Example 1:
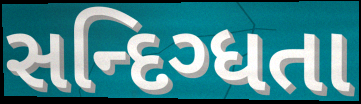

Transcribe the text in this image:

સન્દિગ્ધતા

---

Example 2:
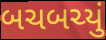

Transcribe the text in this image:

બચબચ્યું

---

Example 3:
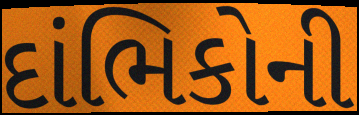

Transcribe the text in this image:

દાંભિકોની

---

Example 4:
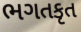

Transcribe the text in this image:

ભગતકૃત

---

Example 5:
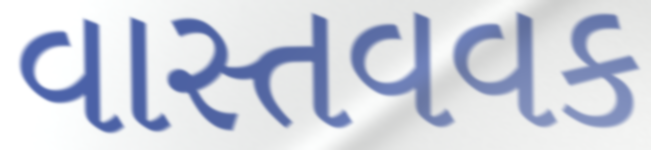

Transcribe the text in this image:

વાસ્તવવક